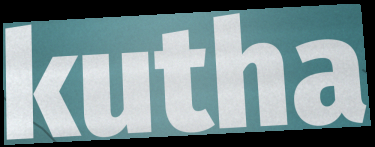
kutha